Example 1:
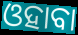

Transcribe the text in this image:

ଓହାବା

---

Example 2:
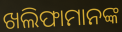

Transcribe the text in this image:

ଖଲିଫାମାନଙ୍କ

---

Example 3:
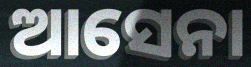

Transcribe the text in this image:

ଆସେନା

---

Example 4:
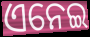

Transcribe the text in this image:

ଏନେଇ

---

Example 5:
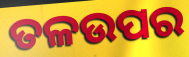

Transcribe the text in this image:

ତଳଉପର